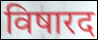
विषारद